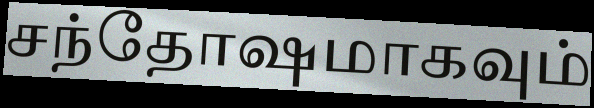
சந்தோஷமாகவும்